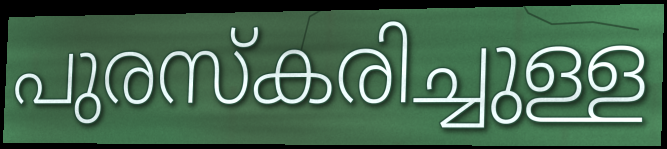
പുരസ്കരിച്ചുള്ള